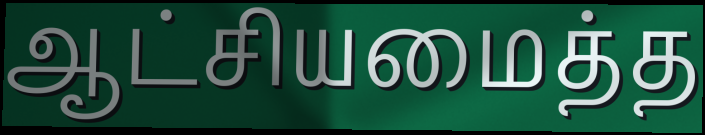
ஆட்சியமைத்த